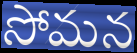
సోమన